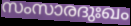
സംസാരദുഃഖം